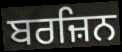
ਬਰਜ਼ਿਨ